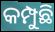
କମ୍ପୁଛି